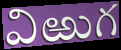
విఱుగ